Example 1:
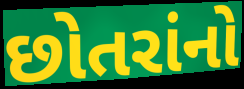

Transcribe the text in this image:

છોતરાંનો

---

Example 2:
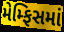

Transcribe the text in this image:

મેમ્ફિસમાં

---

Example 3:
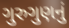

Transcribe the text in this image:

ગુરુગુણનું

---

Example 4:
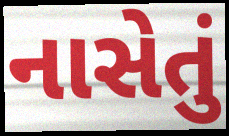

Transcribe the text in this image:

નાસેતું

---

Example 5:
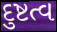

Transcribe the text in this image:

દુષ્ટત્વ